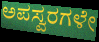
ಅಪಸ್ವರಗಳೇ